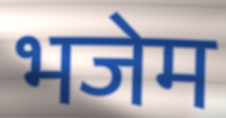
भजेम